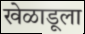
खेळाडूला